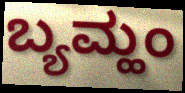
ಬ್ಯಮ್ಹಂ